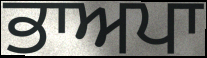
ਭਾਅਪਾ